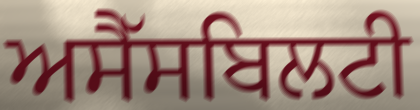
ਅਸੈੱਸਬਿਲਟੀ